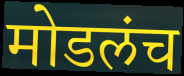
मोडलंच